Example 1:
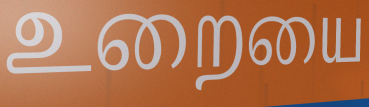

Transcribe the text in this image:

உறையை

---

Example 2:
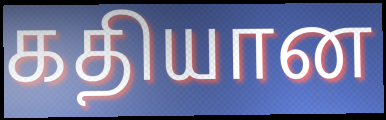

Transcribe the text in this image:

கதியான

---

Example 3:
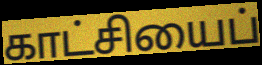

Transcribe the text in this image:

காட்சியைப்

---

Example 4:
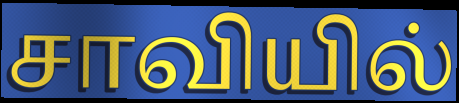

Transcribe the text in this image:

சாவியில்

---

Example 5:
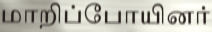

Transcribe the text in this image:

மாறிப்போயினர்